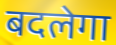
बदलेगा